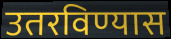
उतरविण्यास